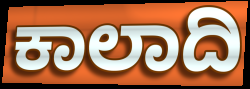
ಕಾಲಾದಿ